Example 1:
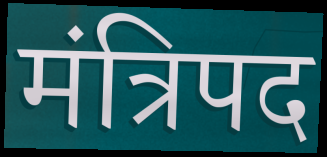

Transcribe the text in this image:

मंत्रिपद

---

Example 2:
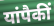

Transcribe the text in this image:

यांपैकीं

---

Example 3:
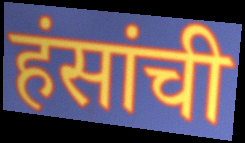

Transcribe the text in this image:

हंसांची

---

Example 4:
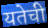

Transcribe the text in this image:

यतेची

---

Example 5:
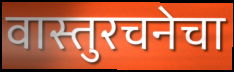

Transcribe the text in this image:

वास्तुरचनेचा